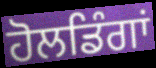
ਹੋਲਡਿੰਗਾਂ